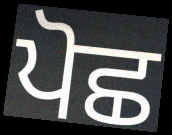
ਪੋਛ